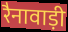
रैनावाड़ी